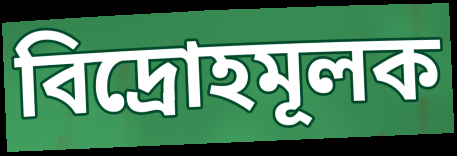
বিদ্রোহমূলক